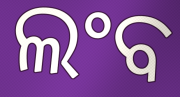
ଲଂବ